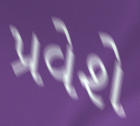
પ્રવેશે